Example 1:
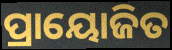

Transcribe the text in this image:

ପ୍ରାୟୋଜିତ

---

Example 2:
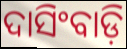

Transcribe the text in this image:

ଦାସିଂବାଡ଼ି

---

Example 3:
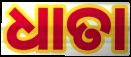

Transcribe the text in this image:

ଧାତା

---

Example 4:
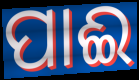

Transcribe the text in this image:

ପାଈ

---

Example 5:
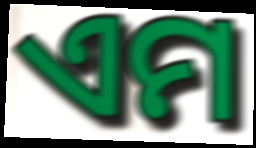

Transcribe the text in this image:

ଏମ